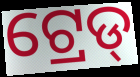
ଟ୍ରେଡ୍